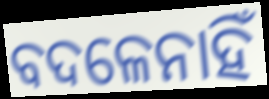
ବଦଳେନାହିଁ